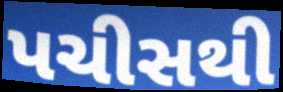
પચીસથી